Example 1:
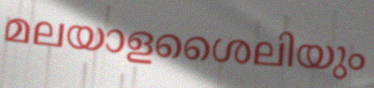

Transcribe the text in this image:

മലയാളശൈലിയും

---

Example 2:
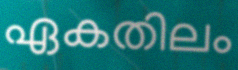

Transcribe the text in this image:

ഏകതിലം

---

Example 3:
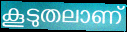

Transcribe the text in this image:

കൂടുതലാണ്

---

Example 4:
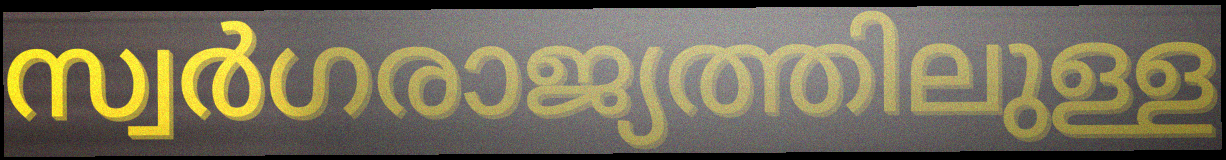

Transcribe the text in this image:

സ്വർഗരാജ്യത്തിലുള്ള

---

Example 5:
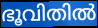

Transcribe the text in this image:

ഭൂവിതിൽ